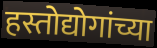
हस्तोद्योगांच्या